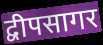
द्वीपसागर